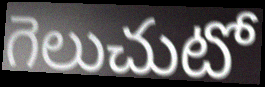
గెలుచుటో